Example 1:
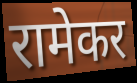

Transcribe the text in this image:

रामेकर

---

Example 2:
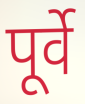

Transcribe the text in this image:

पूर्वे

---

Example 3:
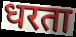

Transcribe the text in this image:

धरता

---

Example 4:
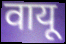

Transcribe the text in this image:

वायू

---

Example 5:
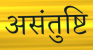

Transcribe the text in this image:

असंतुष्टि